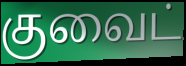
குவைட்